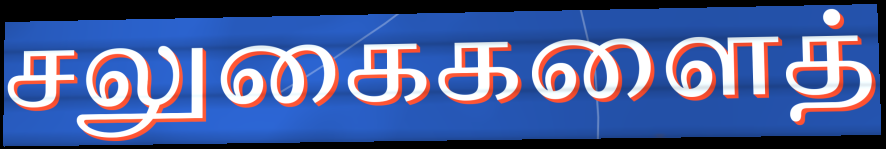
சலுகைகளைத்